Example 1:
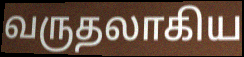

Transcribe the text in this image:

வருதலாகிய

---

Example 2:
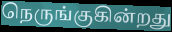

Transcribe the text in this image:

நெருங்குகின்றது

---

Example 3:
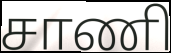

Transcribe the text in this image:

சாணி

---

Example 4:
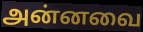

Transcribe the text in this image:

அன்னவை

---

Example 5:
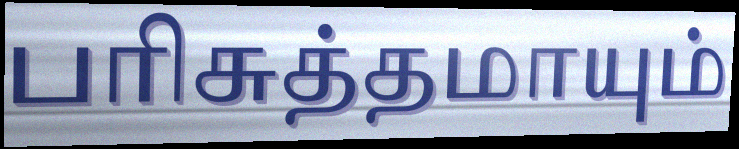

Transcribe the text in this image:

பரிசுத்தமாயும்